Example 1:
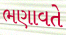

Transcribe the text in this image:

ભણાવતે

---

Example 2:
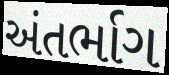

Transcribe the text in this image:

અંતર્ભાગ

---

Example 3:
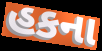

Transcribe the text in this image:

હકના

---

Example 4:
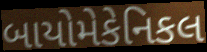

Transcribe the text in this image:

બાયોમેકેનિકલ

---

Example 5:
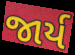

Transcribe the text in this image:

જાર્ય